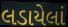
લડાયેલાં